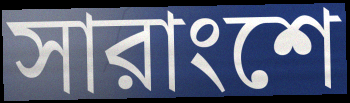
সারাংশে